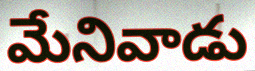
మేనివాడు